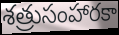
శత్రుసంహారకా